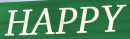
HAPPY